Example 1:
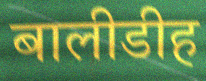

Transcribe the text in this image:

बालीडीह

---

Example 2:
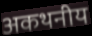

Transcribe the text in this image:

अकथनीय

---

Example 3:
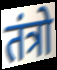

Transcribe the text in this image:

तंत्रो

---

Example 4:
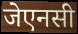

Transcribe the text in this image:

जेएनसी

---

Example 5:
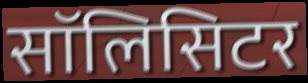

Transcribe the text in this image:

सॉलिसिटर